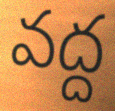
వద్ద